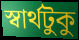
স্বার্থটুকু